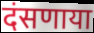
दंसणाया